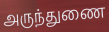
அருந்துணை